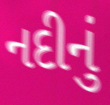
નદીનું